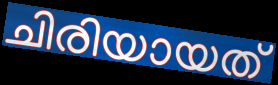
ചിരിയായത്